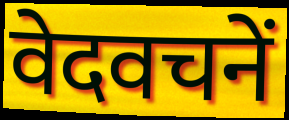
वेदवचनें